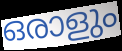
ഒരാളും